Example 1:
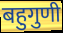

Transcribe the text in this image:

बहुगुणी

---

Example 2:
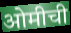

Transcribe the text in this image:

ओमीची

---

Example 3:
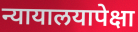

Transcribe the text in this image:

न्यायालयापेक्षा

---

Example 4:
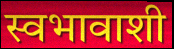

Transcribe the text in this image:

स्वभावाशी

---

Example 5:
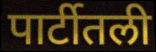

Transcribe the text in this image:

पार्टीतली